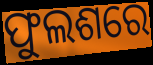
ଫୁଲଶରେ